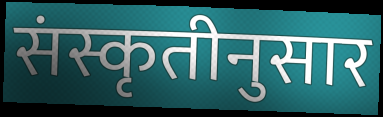
संस्कृतीनुसार